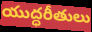
యుద్ధరీతులు